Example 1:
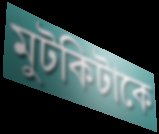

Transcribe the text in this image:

মুটকিটাকে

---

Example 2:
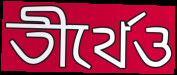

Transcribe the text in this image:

তীর্থেও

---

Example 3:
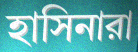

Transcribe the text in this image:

হাসিনারা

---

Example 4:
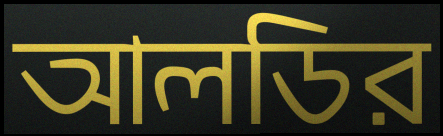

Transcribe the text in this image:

আলডির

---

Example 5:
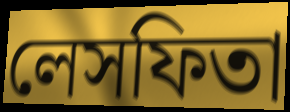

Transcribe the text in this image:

লেসফিতা